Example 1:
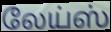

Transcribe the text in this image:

லேய்ஸ்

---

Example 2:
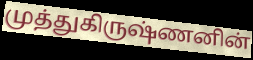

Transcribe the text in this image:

முத்துகிருஷ்ணனின்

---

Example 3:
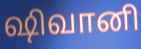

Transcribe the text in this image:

ஷிவானி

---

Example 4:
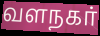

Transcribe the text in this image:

வளநகர்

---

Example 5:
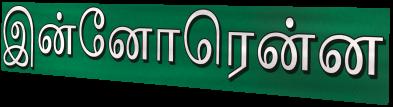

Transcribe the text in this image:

இன்னோரென்ன